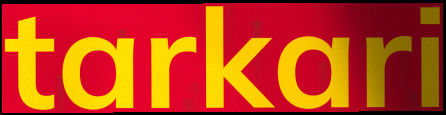
tarkari